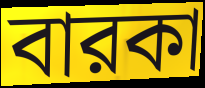
বারকা